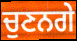
ਚੁਣਨਗੇ